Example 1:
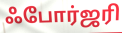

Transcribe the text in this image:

ஃபோர்ஜரி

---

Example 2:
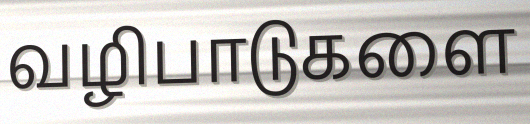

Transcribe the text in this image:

வழிபாடுகளை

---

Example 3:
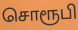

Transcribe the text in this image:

சொரூபி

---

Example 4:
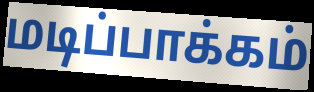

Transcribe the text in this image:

மடிப்பாக்கம்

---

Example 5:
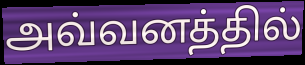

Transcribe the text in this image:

அவ்வனத்தில்